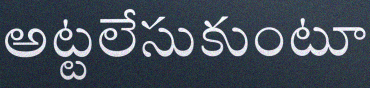
అట్టలేసుకుంటూ